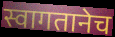
स्वागतानेच